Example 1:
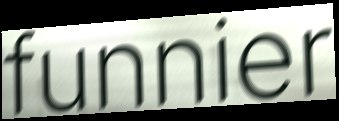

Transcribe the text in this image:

funnier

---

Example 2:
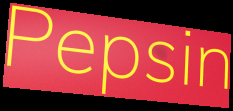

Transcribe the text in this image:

Pepsin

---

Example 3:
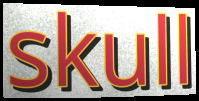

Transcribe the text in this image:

skull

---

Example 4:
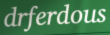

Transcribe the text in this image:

drferdous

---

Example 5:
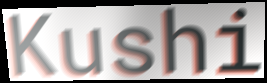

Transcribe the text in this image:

Kushi